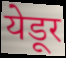
येडूर